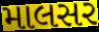
માલસર